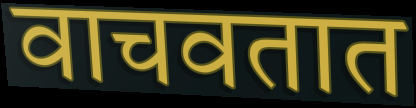
वाचवतात